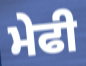
ਮੇਫੀ